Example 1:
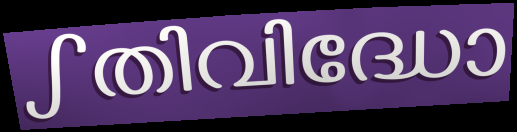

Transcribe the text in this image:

ഽതിവിദ്ധോ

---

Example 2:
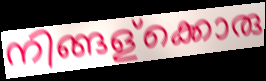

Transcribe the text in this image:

നിങ്ങള്ക്കൊരു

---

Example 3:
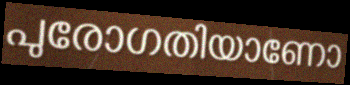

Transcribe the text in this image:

പുരോഗതിയാണോ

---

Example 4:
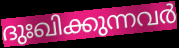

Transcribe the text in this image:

ദുഃഖിക്കുന്നവർ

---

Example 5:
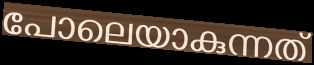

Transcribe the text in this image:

പോലെയാകുന്നത്